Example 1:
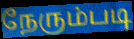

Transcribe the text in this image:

நேரும்படி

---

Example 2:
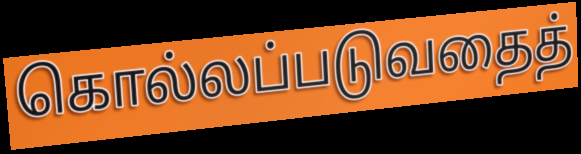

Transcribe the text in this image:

கொல்லப்படுவதைத்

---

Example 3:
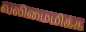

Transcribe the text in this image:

வலிமைமிக்க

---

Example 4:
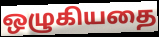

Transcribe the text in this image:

ஒழுகியதை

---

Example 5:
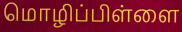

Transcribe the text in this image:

மொழிப்பிள்ளை